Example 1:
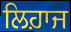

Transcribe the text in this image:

ਲਿਹ਼ਾਜ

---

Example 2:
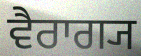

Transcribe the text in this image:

ਵੈਰਾਗ੍ਯ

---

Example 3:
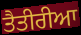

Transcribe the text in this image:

ਤੈਤੀਰੀਆ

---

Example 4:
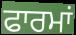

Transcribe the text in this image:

ਫਾਰਮਾਂ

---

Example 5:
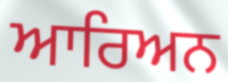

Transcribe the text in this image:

ਆਰਿਅਨ